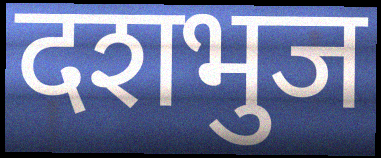
दशभुज